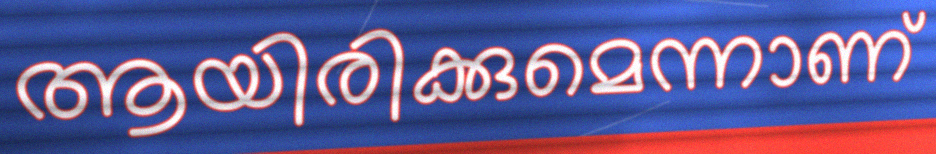
ആയിരിക്കുമെന്നാണ്